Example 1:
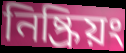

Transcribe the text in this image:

নিষ্ক্রিয়ং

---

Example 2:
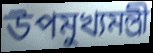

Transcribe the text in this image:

উপমুখ্যমন্ত্রী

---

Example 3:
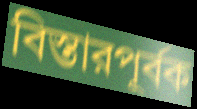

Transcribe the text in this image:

বিস্তারপূর্বক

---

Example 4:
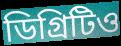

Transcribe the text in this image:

ডিগ্রিটিও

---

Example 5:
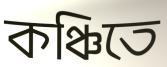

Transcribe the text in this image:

কঞ্চিতে